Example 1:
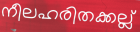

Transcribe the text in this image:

നീലഹരിതക്കല്ല്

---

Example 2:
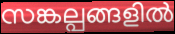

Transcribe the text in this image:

സങ്കല്പങ്ങളിൽ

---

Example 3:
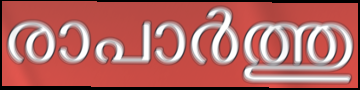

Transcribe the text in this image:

രാപാർത്തു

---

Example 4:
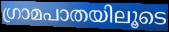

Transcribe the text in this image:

ഗ്രാമപാതയിലൂടെ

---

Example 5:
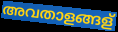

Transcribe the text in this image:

അവതാളങ്ങള്